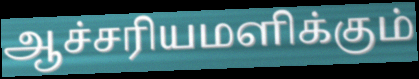
ஆச்சரியமளிக்கும்